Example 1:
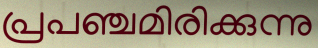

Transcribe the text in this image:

പ്രപഞ്ചമിരിക്കുന്നു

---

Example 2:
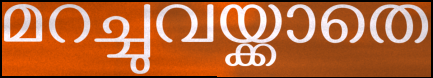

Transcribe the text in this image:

മറച്ചുവയ്ക്കാതെ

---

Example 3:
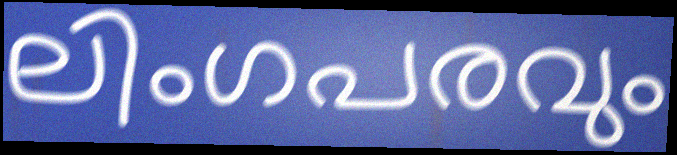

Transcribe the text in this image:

ലിംഗപരവും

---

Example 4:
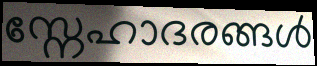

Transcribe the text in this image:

സ്നേഹാദരങ്ങൾ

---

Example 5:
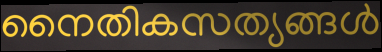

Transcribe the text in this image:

നൈതികസത്യങ്ങൾ